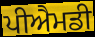
ਪੀਐਮਡੀ